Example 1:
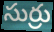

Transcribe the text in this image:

సుర్రు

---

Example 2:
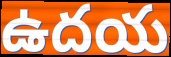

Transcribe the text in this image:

ఉదయ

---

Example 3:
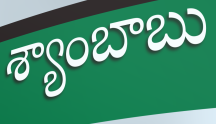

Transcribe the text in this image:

శ్యాంబాబు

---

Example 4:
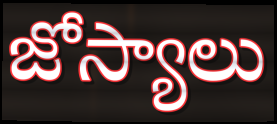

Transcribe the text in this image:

జోస్యాలు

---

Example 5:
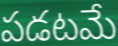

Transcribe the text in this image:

పడటమే